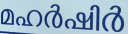
മഹർഷിർ